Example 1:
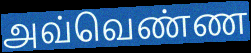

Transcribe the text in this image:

அவ்வெண்ண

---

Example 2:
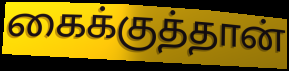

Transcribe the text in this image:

கைக்குத்தான்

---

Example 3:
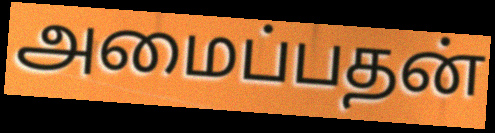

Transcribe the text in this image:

அமைப்பதன்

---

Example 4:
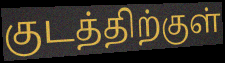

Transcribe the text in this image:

குடத்திற்குள்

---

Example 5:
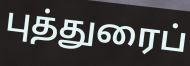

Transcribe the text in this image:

புத்துரைப்